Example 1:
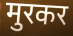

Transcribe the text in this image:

मुरकर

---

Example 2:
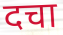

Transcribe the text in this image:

दचा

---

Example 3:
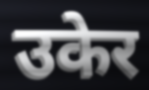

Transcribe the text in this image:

उकेर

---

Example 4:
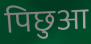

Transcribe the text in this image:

पिछुआ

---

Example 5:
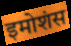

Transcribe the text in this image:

इमोशंस